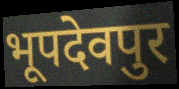
भूपदेवपुर